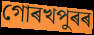
গোৰখপুৰৰ